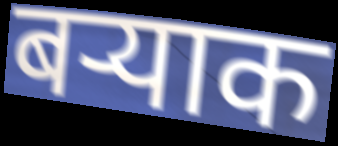
बऱ्याक